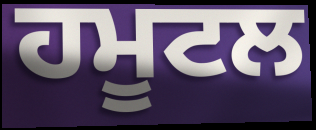
ਹਮੂਟਲ